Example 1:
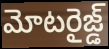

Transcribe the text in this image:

మోటరైజ్డ్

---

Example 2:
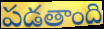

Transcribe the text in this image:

పడతాంది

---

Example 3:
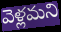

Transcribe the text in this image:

వెళ్లమని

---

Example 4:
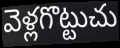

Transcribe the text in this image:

వెళ్లగొట్టుచు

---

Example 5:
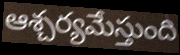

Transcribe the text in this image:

ఆశ్చర్యమేస్తుంది